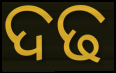
ଦଢ